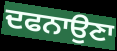
ਦਫਨਾਉਣਾ